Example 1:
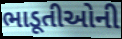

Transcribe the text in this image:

ભાડૂતીઓની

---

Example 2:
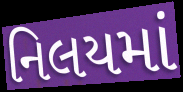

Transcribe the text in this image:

નિલયમાં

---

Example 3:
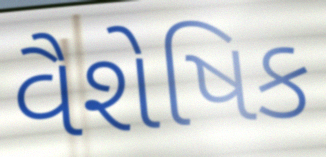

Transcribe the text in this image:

વૈશેષિક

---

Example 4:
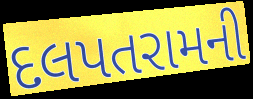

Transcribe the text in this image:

દલપતરામની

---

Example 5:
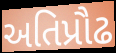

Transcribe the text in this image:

અતિપ્રૌઢ